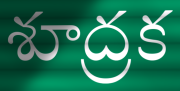
శూద్రక